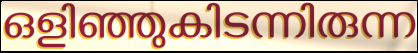
ഒളിഞ്ഞുകിടന്നിരുന്ന